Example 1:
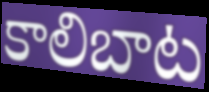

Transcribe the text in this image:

కాలిబాట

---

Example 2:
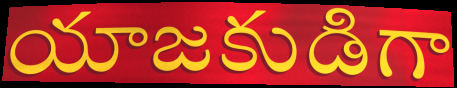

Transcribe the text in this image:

యాజకుడిగా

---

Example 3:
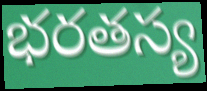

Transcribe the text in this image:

భరతస్య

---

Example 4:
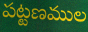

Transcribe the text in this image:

పట్టణముల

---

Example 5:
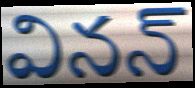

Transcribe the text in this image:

వినన్